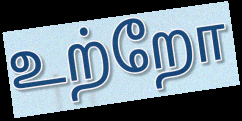
உற்றோ